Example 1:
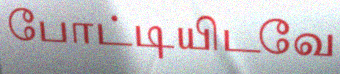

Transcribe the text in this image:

போட்டியிடவே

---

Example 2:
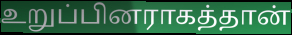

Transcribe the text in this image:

உறுப்பினராகத்தான்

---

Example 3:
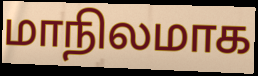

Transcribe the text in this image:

மாநிலமாக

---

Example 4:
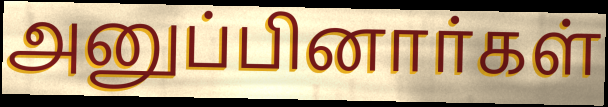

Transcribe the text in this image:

அனுப்பினார்கள்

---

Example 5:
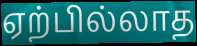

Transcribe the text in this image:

ஏற்பில்லாத